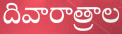
దివారాత్రాల